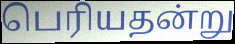
பெரியதன்று